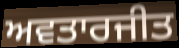
ਅਵਤਾਰਜੀਤ